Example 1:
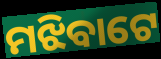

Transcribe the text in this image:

ମଝିବାଟେ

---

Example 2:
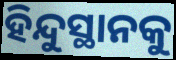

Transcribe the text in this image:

ହିନ୍ଦୁସ୍ଥାନକୁ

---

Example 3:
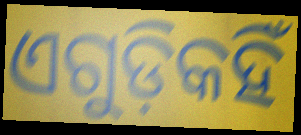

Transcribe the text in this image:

ଏଗୁଡ଼ିକହିଁ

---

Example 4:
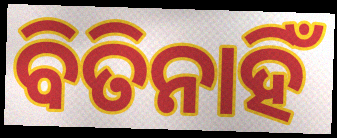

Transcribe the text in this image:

ବିତିନାହିଁ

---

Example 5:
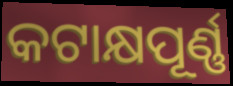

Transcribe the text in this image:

କଟାକ୍ଷପୂର୍ଣ୍ଣ